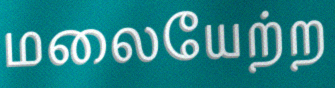
மலையேற்ற